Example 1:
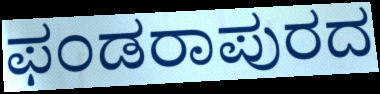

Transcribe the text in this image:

ಫಂಡರಾಪುರದ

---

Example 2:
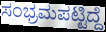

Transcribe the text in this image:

ಸಂಭ್ರಮಪಟ್ಟಿದ್ದೆ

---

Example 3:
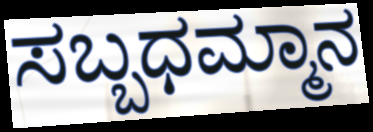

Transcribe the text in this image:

ಸಬ್ಬಧಮ್ಮಾನ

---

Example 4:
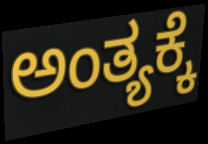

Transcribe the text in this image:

ಅಂತ್ಯಕ್ಕೆ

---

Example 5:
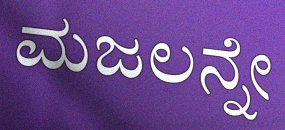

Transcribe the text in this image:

ಮಜಲನ್ನೇ